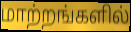
மாற்றங்களில்